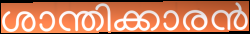
ശാന്തിക്കാരൻ